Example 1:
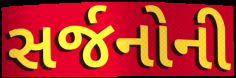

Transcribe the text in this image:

સર્જનોની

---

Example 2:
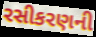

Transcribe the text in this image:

રસીકરણની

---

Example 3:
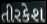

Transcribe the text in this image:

તીરકેશ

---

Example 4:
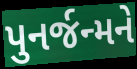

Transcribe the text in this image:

પુનર્જન્મને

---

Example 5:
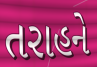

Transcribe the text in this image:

તરાહને